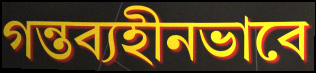
গন্তব্যহীনভাবে